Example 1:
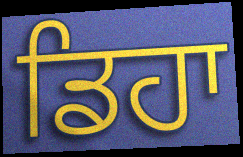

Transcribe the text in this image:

ਡਿਹਾ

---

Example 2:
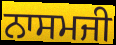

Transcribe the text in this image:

ਨਾਸਮਜੀ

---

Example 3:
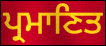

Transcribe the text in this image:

ਪ੍ਰਮਾਣਿਤ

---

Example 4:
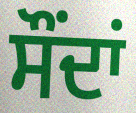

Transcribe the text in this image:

ਸੌਂਦਾਂ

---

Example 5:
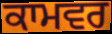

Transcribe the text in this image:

ਕਾਮਵਰ